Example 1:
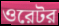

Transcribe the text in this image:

ওরেটর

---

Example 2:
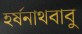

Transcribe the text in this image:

হর্ষনাথবাবু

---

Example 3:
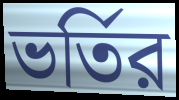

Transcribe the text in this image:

ভর্তির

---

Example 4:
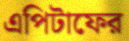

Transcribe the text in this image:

এপিটাফের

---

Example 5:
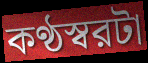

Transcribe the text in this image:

কণ্ঠস্বরটা